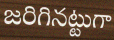
జరిగినట్టుగా